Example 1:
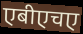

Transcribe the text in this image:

एबीएचए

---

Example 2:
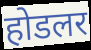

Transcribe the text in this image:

होडलर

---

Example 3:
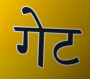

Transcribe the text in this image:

गेट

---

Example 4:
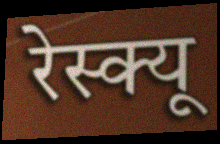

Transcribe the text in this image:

रेस्क्यू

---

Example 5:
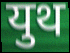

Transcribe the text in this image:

युथ